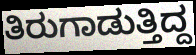
ತಿರುಗಾಡುತ್ತಿದ್ದ